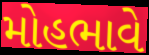
મોહભાવે